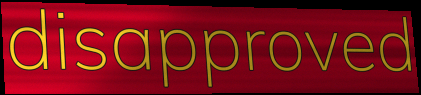
disapproved